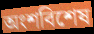
অংশবিশেষ